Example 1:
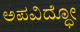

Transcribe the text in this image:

ಅಪವಿದ್ಧೋ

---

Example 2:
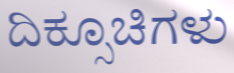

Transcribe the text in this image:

ದಿಕ್ಸೂಚಿಗಳು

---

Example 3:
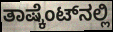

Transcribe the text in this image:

ತಾಷ್ಕೆಂಟ್‌ನಲ್ಲಿ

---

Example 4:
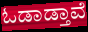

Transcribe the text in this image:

ಓಡಾಡ್ತಾವೆ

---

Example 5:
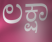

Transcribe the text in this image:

ಲಕ್ಷಾ